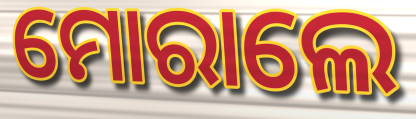
ମୋରାଲେ